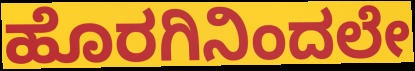
ಹೊರಗಿನಿಂದಲೇ